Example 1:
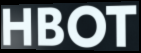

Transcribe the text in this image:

HBOT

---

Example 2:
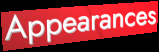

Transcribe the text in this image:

Appearances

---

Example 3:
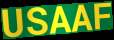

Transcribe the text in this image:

USAAF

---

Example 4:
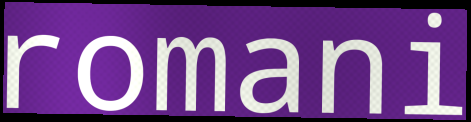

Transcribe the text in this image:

romani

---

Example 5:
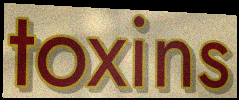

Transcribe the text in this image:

toxins